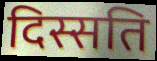
दिस्सति